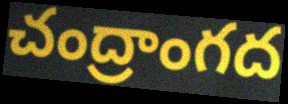
చంద్రాంగద